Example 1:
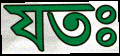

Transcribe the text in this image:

যতঃ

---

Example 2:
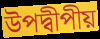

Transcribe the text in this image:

উপদ্বীপীয়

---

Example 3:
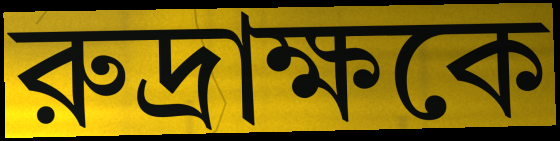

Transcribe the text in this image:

রুদ্রাক্ষকে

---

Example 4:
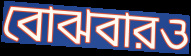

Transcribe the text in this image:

বোঝবারও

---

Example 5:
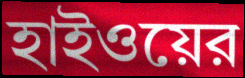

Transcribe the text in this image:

হাইওয়ের